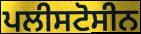
ਪਲੀਸਟੋਸੀਨ